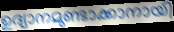
ഉദ്യാനമുണ്ടാക്കാനായി